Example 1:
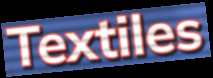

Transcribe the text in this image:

Textiles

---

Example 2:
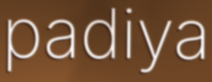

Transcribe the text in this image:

padiya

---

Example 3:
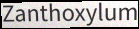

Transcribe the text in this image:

Zanthoxylum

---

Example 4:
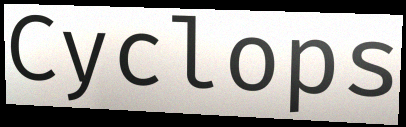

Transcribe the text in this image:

Cyclops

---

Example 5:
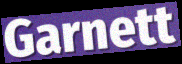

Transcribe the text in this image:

Garnett